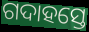
ଗଦାହସ୍ତେ